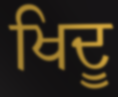
ਖਿਦੂ